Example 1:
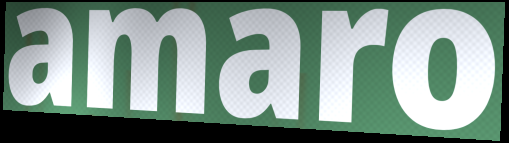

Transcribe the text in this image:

amaro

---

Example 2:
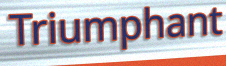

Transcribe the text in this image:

Triumphant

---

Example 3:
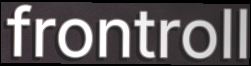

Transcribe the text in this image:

frontroll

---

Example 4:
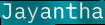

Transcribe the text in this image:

Jayantha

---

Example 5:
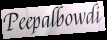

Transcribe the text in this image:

Peepalbowdi